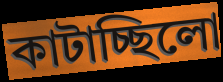
কাটাচ্ছিলো